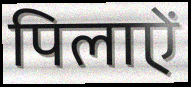
पिलाऐं